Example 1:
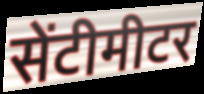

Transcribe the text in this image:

सेंटीमीटर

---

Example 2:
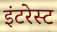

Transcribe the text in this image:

इंटरेस्ट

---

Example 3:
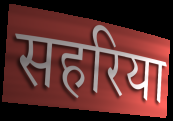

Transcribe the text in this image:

सहरिया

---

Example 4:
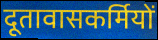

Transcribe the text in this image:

दूतावासकर्मियों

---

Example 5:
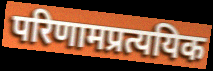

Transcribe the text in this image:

परिणामप्रत्ययिक